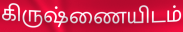
கிருஷ்ணையிடம்